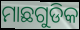
ମାଛଗୁଡିକ